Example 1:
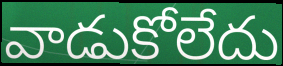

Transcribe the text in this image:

వాడుకోలేదు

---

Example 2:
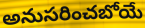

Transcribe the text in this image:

అనుసరించబోయే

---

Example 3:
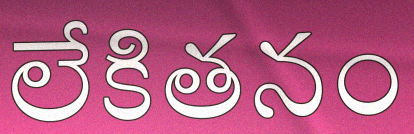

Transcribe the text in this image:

లేకితనం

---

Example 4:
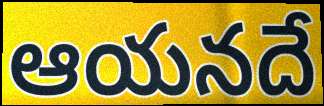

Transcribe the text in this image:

ఆయనదే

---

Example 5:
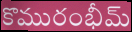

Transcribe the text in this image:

కొమురంభీమ్